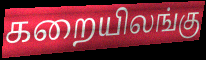
கறையிலங்கு